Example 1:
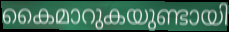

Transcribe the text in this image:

കൈമാറുകയുണ്ടായി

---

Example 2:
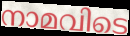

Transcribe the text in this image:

നാമവിടെ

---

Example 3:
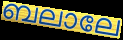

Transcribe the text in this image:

ബലാലേ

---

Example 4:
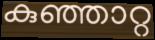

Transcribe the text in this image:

കുഞ്ഞാറ്റ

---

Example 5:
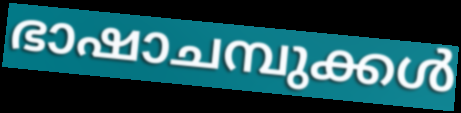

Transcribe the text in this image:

ഭാഷാചമ്പുക്കൾ